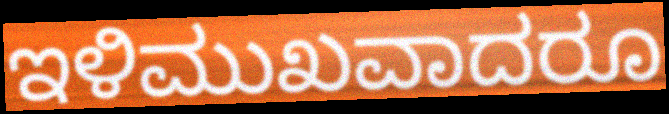
ಇಳಿಮುಖವಾದರೂ